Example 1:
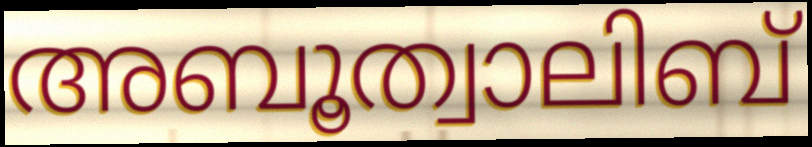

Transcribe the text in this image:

അബൂത്വാലിബ്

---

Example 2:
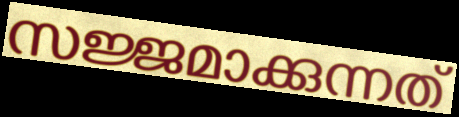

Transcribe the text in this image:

സജ്ജമാക്കുന്നത്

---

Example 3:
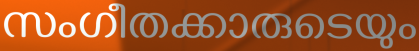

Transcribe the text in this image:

സംഗീതക്കാരുടെയും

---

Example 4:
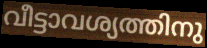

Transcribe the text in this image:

വീട്ടാവശ്യത്തിനു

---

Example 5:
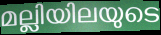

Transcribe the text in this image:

മല്ലിയിലയുടെ